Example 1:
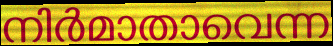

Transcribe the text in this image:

നിർമാതാവെന്ന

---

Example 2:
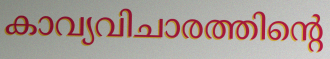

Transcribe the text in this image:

കാവ്യവിചാരത്തിന്റെ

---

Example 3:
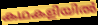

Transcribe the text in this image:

കഥകളിയിൽ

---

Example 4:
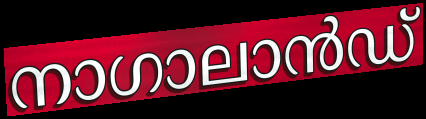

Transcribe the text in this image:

നാഗാലാൻഡ്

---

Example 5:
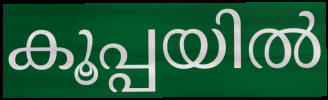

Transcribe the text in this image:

കൂപ്പയിൽ